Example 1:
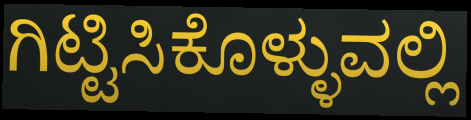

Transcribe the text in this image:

ಗಿಟ್ಟಿಸಿಕೊಳ್ಳುವಲ್ಲಿ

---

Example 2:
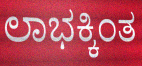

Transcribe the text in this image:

ಲಾಭಕ್ಕಿಂತ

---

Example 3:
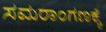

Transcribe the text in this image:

ಸಮರಾಂಗಣಕ್ಕೆ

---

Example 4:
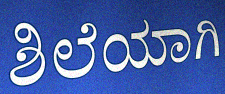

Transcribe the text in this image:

ಶಿಲೆಯಾಗಿ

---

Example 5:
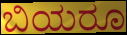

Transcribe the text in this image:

ಬಿಯರೂ